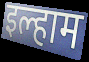
इल्हाम